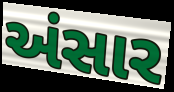
અંસાર